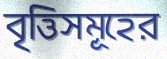
বৃত্তিসমূহের